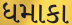
ધમાકા